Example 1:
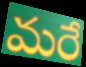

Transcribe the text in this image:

మరే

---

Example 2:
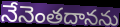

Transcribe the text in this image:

నేనెంతదానను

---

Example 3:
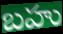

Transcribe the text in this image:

బహు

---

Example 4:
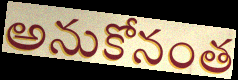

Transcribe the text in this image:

అనుకోనంత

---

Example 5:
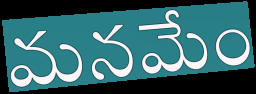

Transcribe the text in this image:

మనమేం